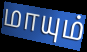
மாயும்